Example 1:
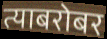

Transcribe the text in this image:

त्याबरोबर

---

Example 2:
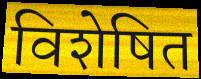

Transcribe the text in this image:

विशेषित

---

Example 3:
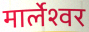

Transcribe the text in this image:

मार्लेश्वर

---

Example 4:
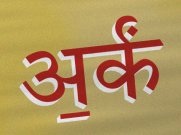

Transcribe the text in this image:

अ॒र्कं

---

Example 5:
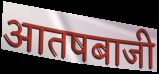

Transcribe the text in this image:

आतषबाजी